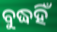
ବୁଦ୍ଧହିଁ